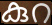
കുറ